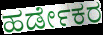
ಹರ್ಡೇಕರ